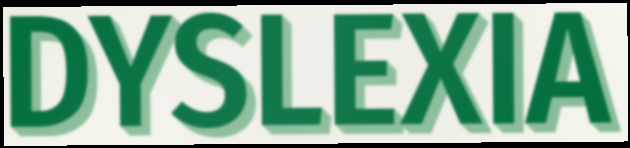
DYSLEXIA